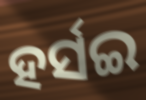
ହର୍ସଇ